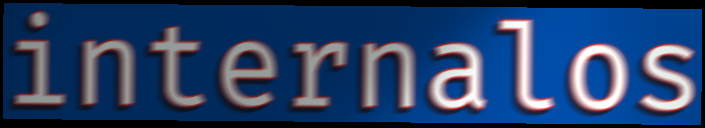
internalos